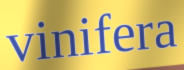
vinifera